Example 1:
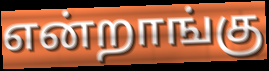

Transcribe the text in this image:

என்றாங்கு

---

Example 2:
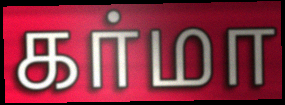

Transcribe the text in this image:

கர்மா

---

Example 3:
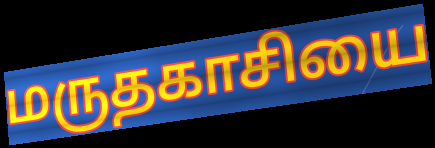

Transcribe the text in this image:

மருதகாசியை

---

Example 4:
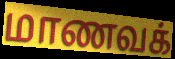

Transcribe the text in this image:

மாணவக்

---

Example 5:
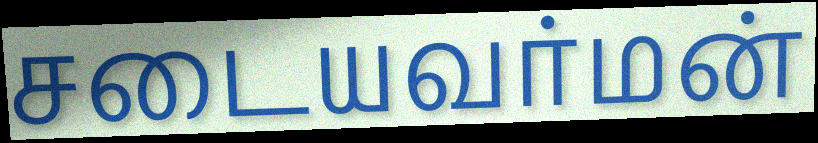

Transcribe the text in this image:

சடையவர்மன்